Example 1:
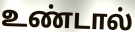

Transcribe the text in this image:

உண்டால்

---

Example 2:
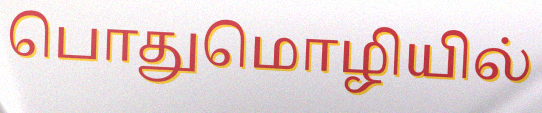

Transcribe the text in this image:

பொதுமொழியில்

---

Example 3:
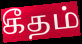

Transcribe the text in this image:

கீதம்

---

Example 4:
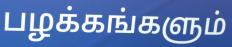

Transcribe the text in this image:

பழக்கங்களும்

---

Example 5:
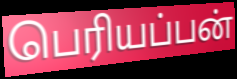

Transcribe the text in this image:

பெரியப்பன்